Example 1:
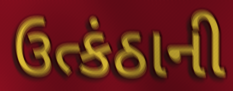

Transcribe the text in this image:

ઉત્કંઠાની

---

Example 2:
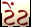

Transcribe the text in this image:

ટેંટ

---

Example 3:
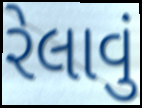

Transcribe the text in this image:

રેલાવું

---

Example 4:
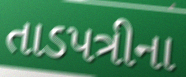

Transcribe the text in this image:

તાડપત્રીના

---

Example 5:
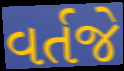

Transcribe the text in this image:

વર્તજે